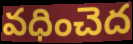
వధించెద